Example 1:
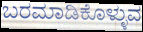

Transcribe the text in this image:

ಬರಮಾಡಿಕೊಳ್ಳುವ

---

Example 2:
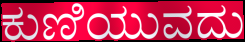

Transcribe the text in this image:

ಕುಣಿಯುವದು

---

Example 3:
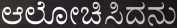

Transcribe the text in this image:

ಆಲೋಚಿಸಿದನು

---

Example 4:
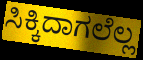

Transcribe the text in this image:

ಸಿಕ್ಕಿದಾಗಲೆಲ್ಲ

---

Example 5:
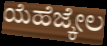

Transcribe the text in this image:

ಯೆಹೆಜ್ಕೇಲ